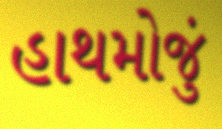
હાથમોજું